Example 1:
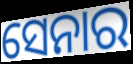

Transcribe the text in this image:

ସେନାର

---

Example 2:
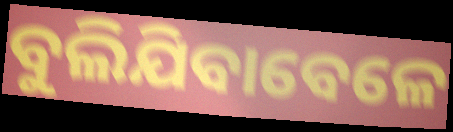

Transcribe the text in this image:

ବୁଲିଯିବାବେଳେ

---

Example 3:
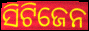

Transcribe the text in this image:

ସିଟିଜେନ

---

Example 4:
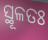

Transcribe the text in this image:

ସ୍ଥୂଳତଃ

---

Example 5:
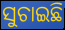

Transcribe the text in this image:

ସୁଚାଇଛି